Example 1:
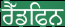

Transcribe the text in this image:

ਰੈੱਡਫਿਨ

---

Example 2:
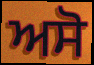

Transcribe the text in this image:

ਅਸੋ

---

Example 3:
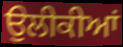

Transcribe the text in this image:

ਉਲੀਕੀਆਂ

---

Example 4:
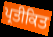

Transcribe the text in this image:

ਪ੍ਰਤੀਕਿਤ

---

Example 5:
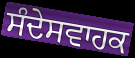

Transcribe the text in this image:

ਸੰਦੇਸਵਾਹਕ